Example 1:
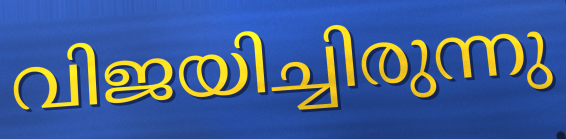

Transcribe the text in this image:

വിജയിച്ചിരുന്നു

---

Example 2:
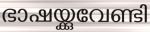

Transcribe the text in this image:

ഭാഷയ്ക്കുവേണ്ടി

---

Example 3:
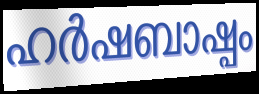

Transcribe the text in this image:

ഹർഷബാഷ്പം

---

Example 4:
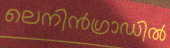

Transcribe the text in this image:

ലെനിൻഗ്രാഡിൽ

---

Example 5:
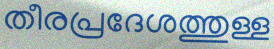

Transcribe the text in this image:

തീരപ്രദേശത്തുള്ള